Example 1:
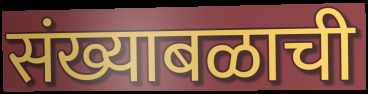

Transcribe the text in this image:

संख्याबळाची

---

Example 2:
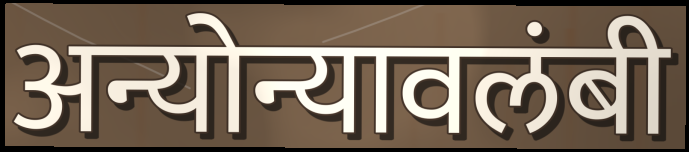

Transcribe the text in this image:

अन्योन्यावलंबी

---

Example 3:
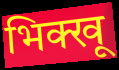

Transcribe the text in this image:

भिक्‍खू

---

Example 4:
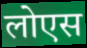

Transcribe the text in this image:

लोएस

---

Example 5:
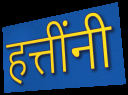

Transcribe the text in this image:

हत्तींनी